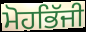
ਮੋਹਭਿੱਜੀ